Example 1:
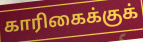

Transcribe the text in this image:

காரிகைக்குக்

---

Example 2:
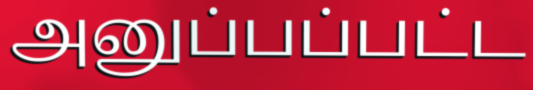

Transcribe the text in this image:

அனுப்பப்பட்ட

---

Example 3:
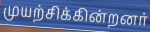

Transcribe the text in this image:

முயற்சிக்கின்றனர்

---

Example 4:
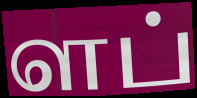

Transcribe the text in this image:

ளப்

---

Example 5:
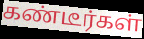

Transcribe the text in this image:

கண்டீர்கள்